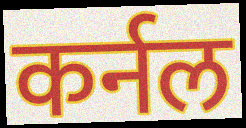
कर्नल